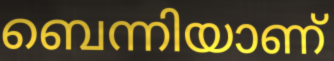
ബെന്നിയാണ്